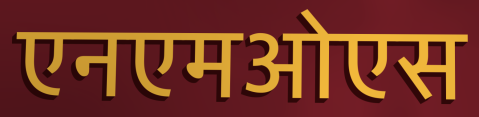
एनएमओएस